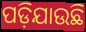
ପଡ଼ିଯାଉଛି